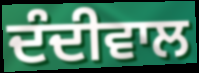
ਦੰਦੀਵਾਲ